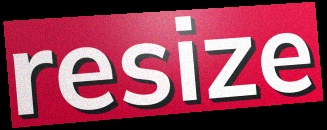
resize